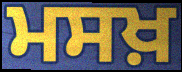
ਮਸਖ਼